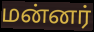
மன்னர்